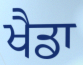
ਖੈਡਾ